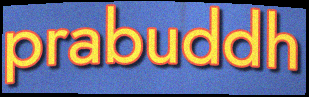
prabuddh